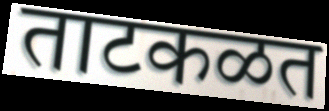
ताटकळत